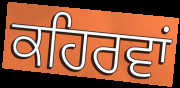
ਕਹਿਰਵਾਂ